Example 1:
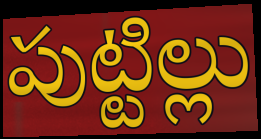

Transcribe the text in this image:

పుట్టిల్లు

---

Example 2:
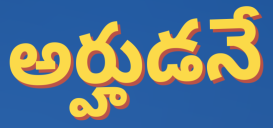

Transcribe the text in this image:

అర్హుడనే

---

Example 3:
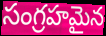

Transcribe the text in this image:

సంగ్రహమైన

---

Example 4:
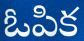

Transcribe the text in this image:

ఓపిక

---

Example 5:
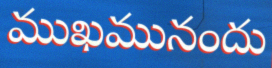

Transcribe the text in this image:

ముఖమునందు